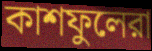
কাশফুলেরা